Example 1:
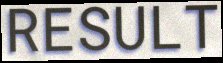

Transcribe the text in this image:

RESULT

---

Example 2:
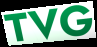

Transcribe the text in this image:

TVG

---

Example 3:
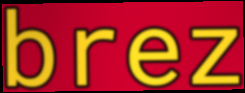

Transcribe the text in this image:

brez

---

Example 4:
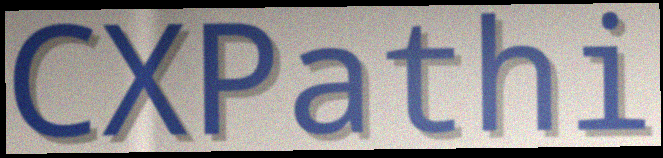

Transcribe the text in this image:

CXPathi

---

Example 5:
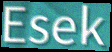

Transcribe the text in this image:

Esek